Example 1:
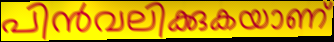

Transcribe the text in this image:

പിൻവലിക്കുകയാണ്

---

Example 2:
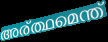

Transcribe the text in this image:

അര്ത്ഥമെന്ത്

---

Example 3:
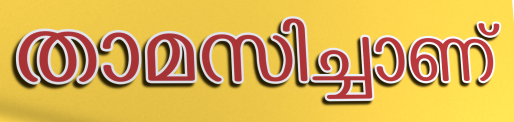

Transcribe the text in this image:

താമസിച്ചാണ്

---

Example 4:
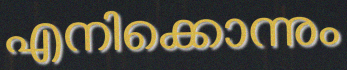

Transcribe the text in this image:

എനിക്കൊന്നും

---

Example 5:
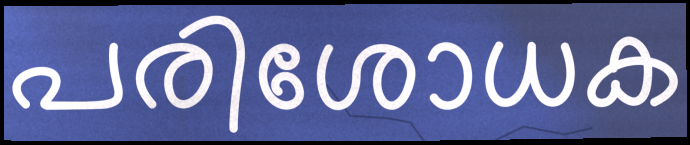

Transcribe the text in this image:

പരിശോധക